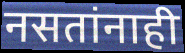
नसतांनाही